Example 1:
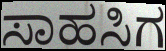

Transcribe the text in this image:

ಸಾಹಸಿಗ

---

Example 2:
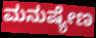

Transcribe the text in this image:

ಮನುಷ್ಯೇಣ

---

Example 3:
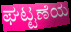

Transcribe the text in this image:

ಘಟ್ಟಣೆಯ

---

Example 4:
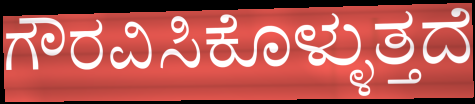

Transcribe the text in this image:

ಗೌರವಿಸಿಕೊಳ್ಳುತ್ತದೆ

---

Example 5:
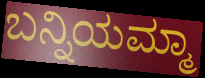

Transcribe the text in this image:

ಬನ್ನಿಯಮ್ಮಾ